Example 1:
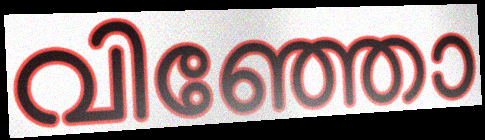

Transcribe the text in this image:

വിഞ്ഞോ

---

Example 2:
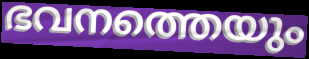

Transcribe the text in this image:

ഭവനത്തെയും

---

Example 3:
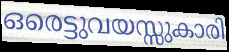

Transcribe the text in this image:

ഒരെട്ടുവയസ്സുകാരി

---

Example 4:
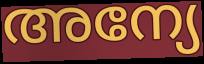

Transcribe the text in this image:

അന്യേ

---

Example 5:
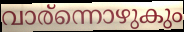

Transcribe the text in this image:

വാര്ന്നൊഴുകും